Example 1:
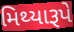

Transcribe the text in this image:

મિથ્યારૂપે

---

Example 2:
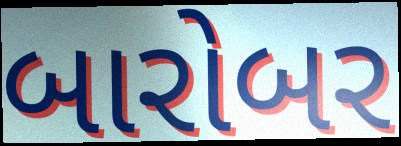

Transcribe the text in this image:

બારોબર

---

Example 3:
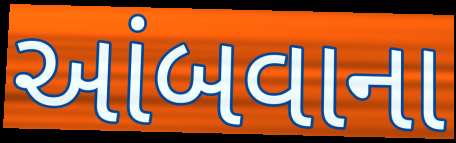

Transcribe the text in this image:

આંબવાના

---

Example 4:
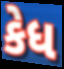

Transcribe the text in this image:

કેધ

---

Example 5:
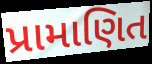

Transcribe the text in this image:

પ્રામાણિત